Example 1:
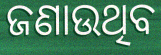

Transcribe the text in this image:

ଜଣାଉଥିବ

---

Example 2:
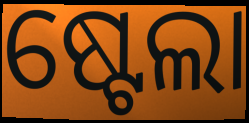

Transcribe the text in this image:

ଷ୍ଟେଲା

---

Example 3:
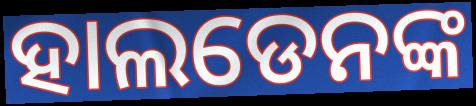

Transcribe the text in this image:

ହାଲଡେନଙ୍କ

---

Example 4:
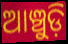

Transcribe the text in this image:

ଆଞ୍ଚୁଡ଼ି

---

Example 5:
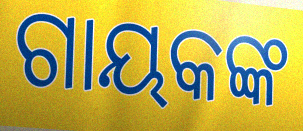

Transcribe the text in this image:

ଗାୟକଙ୍କ